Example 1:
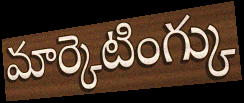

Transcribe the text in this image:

మార్కెటింగ్కు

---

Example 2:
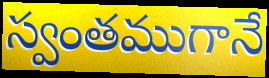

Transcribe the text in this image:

స్వంతముగానే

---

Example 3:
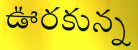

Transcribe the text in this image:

ఊరకున్న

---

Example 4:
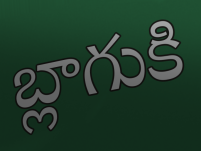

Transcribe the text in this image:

బ్లాగుకి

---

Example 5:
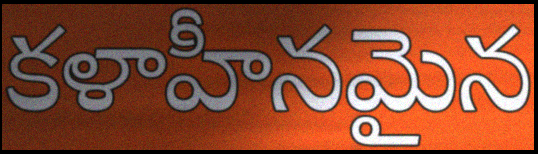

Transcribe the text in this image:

కళాహీనమైన